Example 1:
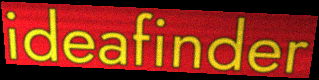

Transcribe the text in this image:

ideafinder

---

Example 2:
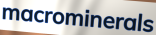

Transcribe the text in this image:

macrominerals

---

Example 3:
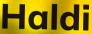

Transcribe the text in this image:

Haldi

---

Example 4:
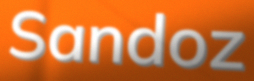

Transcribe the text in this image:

Sandoz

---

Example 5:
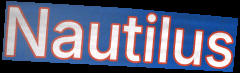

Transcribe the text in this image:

Nautilus